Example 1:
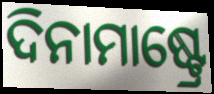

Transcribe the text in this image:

ଦିନାମାଷ୍ଟ୍ରେ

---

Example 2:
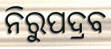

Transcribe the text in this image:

ନିରୁପଦ୍ରବ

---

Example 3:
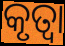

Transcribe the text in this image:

କୃତ୍ଵା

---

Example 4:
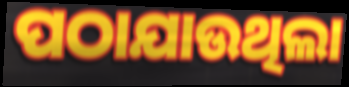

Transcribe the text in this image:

ପଠାଯାଉଥିଲା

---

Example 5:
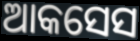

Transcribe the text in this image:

ଆକସେସ